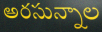
అరసున్నాల